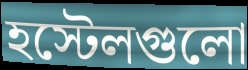
হস্টেলগুলো